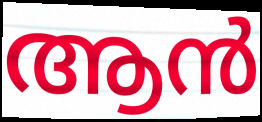
ആൻ